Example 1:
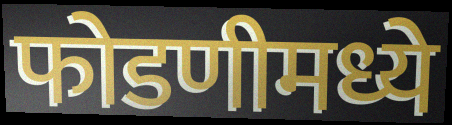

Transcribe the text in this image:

फोडणीमध्ये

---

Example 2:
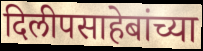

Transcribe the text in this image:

दिलीपसाहेबांच्या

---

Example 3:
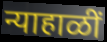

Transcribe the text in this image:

न्याहाळीं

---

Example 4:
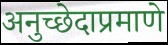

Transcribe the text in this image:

अनुच्छेदाप्रमाणे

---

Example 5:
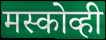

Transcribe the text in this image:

मस्कोव्ही